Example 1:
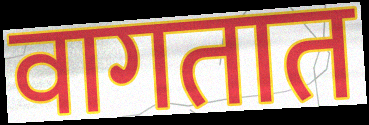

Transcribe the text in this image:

वागतात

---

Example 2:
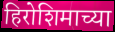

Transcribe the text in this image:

हिरोशिमाच्या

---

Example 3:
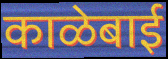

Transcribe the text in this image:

काळेबाई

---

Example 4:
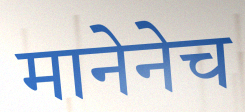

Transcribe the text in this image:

मानेनेच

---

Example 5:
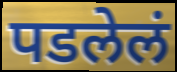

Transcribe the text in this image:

पडलेलं